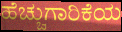
ಹೆಚ್ಚುಗಾರಿಕೆಯ